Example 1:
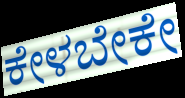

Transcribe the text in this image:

ಕೇಳಬೇಕೇ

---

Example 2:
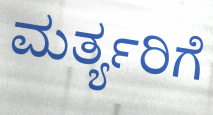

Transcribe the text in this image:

ಮರ್ತ್ಯರಿಗೆ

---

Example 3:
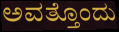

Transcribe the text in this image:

ಅವತ್ತೊಂದು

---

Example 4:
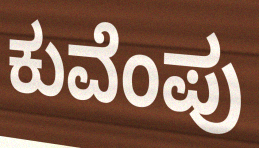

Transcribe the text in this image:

ಕುವೆಂಪು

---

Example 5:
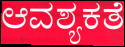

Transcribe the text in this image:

ಆವಶ್ಯಕತೆ